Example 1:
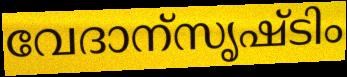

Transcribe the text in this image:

വേദാന്സൃഷ്ടിം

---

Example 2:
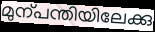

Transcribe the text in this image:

മുന്പന്തിയിലേക്കു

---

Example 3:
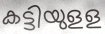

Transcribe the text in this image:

കട്ടിയുളള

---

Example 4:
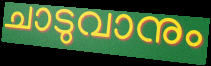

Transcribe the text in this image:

ചാടുവാനും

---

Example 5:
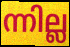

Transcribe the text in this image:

ന്നില്ല